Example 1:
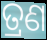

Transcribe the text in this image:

ତ୍ରଣ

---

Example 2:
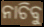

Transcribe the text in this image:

ନାଚିବୁ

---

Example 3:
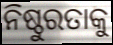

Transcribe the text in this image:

ନିଷ୍ଠୁରତାକୁ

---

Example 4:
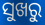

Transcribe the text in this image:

ସୁଖରୁ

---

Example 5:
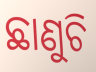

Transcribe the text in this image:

ଛାଣୁଚି